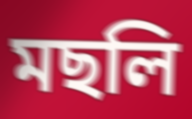
মছলি